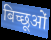
बिच्छूओं